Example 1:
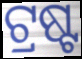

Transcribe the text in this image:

ଟ୍ରଷ୍ଟ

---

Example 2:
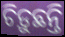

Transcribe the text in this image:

ଚିଡ଼ୁଛନ୍ତି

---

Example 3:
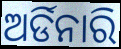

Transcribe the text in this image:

ଅର୍ଡିନାରି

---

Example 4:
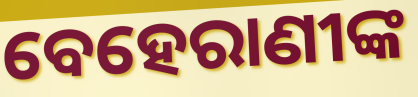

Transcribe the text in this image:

ବେହେରାଣୀଙ୍କ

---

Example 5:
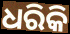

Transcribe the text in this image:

ଧରିକି